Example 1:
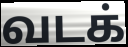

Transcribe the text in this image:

வடக்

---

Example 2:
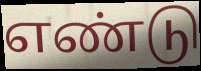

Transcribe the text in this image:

எண்டு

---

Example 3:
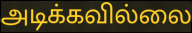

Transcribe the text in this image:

அடிக்கவில்லை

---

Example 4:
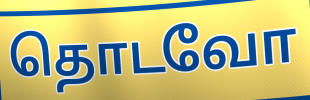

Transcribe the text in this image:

தொடவோ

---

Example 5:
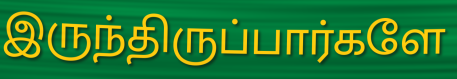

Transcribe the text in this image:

இருந்திருப்பார்களே